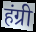
हंग्री